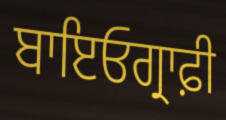
ਬਾਇਓਗ੍ਰਾਫ਼ੀ